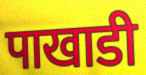
पाखाडी